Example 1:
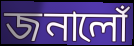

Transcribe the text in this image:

জনালোঁ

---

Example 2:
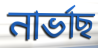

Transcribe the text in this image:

নাৰ্ভাছ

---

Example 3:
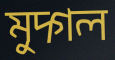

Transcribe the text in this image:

মুদ্গল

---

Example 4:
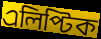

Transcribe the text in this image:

এলিপ্টিক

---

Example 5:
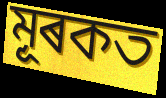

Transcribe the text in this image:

মূৰকত